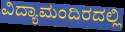
ವಿದ್ಯಾಮಂದಿರದಲ್ಲಿ